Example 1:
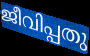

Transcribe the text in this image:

ജീവിപ്പതു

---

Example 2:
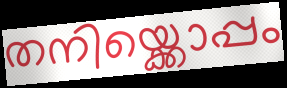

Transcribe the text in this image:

തനിയ്ക്കൊപ്പം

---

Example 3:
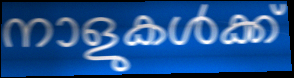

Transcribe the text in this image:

നാളുകൾക്ക്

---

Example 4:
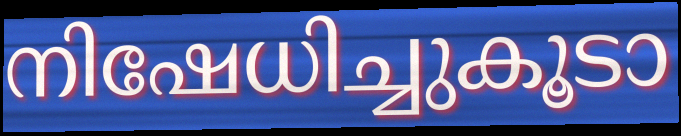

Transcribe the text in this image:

നിഷേധിച്ചുകൂടാ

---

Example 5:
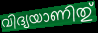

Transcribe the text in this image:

വിദ്യയാണിതു്